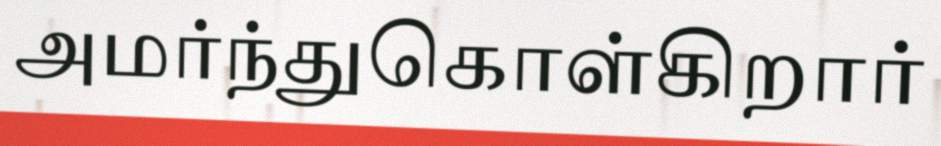
அமர்ந்துகொள்கிறார்